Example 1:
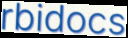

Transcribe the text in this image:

rbidocs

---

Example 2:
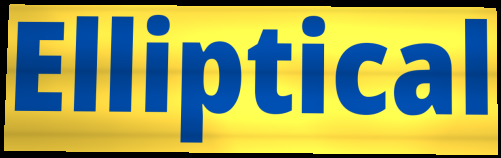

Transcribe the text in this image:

Elliptical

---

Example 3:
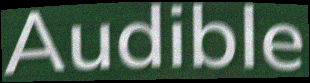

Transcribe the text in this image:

Audible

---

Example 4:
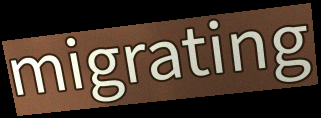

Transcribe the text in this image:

migrating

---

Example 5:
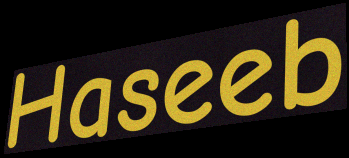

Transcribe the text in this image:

Haseeb